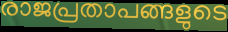
രാജപ്രതാപങ്ങളുടെ